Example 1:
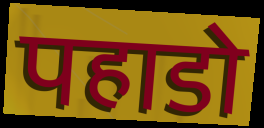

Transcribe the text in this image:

पहाडो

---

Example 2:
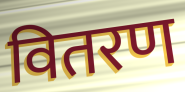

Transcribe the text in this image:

वितरण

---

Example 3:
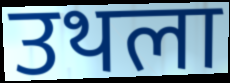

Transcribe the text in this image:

उथला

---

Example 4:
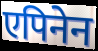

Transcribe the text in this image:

एपिनेन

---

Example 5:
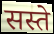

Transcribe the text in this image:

सस्ते